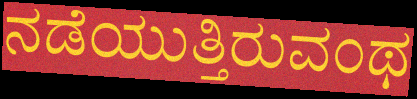
ನಡೆಯುತ್ತಿರುವಂಥ